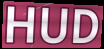
HUD